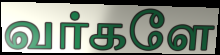
வர்களே